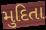
મુદિતા